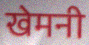
खेमनी